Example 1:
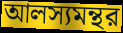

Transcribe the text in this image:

আলস্যমন্থর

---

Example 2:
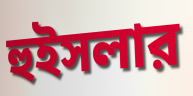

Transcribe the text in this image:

হুইসলার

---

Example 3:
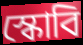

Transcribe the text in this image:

স্কোবি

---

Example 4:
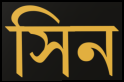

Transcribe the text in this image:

সিন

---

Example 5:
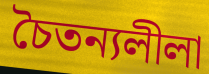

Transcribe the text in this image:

চৈতন্যলীলা